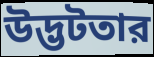
উদ্ভটতার